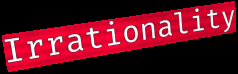
Irrationality